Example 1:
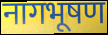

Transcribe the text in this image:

नागभूषण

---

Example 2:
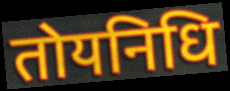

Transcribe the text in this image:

तोयनिधि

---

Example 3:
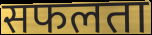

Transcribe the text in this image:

सफलता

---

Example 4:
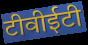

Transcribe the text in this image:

टीवीईटी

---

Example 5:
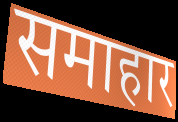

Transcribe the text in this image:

समाहार